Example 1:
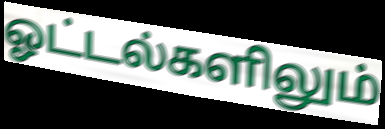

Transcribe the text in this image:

ஓட்டல்களிலும்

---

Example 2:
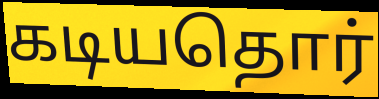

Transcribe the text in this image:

கடியதொர்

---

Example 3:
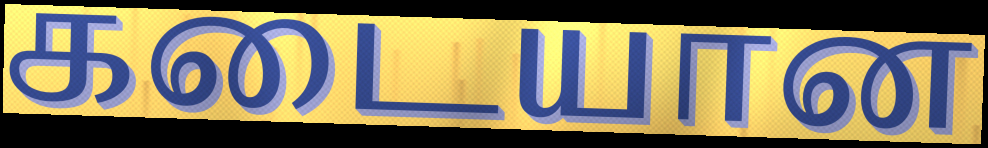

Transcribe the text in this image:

கடையான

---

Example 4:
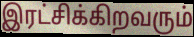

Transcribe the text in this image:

இரட்சிக்கிறவரும்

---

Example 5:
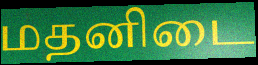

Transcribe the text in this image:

மதனிடை